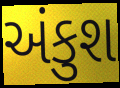
અંકુશ